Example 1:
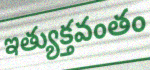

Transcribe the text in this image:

ఇత్యుక్తవంతం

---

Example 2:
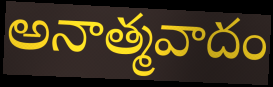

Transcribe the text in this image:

అనాత్మవాదం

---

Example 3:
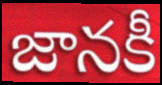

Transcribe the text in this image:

జానకీ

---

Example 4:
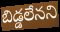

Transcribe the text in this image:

బిడ్డలేనని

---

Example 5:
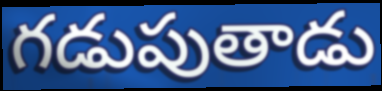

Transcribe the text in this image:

గడుపుతాడు